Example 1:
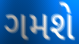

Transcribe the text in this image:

ગમશે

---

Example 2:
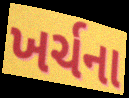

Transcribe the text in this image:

ખર્ચના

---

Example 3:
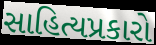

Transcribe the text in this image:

સાહિત્યપ્રકારો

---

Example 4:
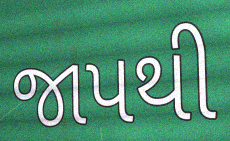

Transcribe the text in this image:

જાપથી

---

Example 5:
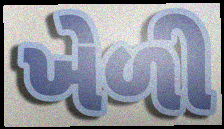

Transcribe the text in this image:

ખેળી